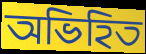
অভিহিত